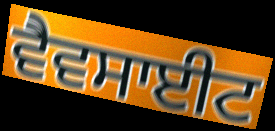
ਵੈਵਸਾਈਟ